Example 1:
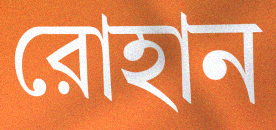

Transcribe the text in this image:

রোহান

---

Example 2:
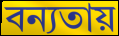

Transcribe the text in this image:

বন্যতায়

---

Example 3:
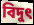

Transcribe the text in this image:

বিদুৎ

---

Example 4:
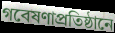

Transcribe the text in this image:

গবেষণাপ্রতিষ্ঠানে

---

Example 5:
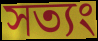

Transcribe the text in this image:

সত্যং